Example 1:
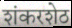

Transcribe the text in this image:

शंकरशेठ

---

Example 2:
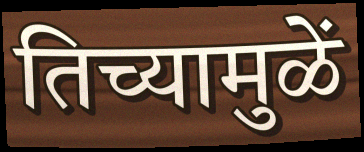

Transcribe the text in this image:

तिच्यामुळें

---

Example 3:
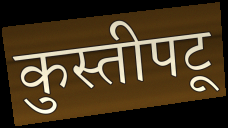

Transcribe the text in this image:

कुस्तीपटू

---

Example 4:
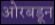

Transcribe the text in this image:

ओरबडून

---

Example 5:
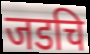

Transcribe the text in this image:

जडचि